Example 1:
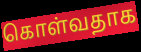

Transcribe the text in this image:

கொள்வதாக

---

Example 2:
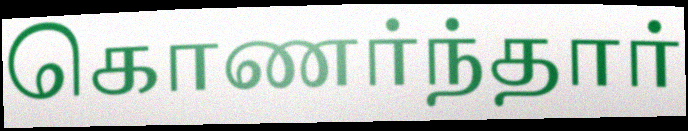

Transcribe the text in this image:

கொணர்ந்தார்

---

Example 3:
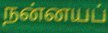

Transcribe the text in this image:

நன்னயப்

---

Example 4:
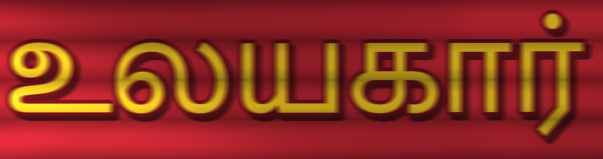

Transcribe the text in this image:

உலயகார்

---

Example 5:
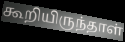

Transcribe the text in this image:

கூறியிருந்தாள்